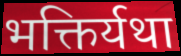
भक्तिर्यथा